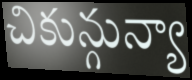
చికున్గున్యా